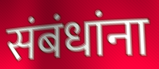
संबंधांना